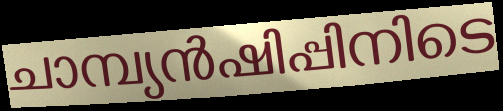
ചാമ്പ്യൻഷിപ്പിനിടെ